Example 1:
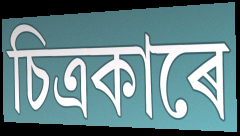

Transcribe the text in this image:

চিত্ৰকাৰে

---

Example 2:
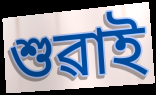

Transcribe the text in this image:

শুৱাই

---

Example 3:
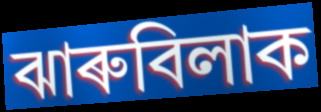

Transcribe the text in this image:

ঝাৰুবিলাক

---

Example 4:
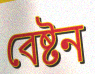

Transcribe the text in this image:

বেষ্টন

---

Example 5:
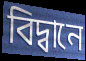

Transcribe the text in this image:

বিদ্বানে